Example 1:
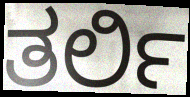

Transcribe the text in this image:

ತರ್ಲಿ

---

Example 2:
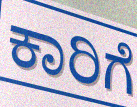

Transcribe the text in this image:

ಕಾರಿಗೆ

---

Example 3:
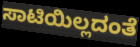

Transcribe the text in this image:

ಸಾಟಿಯಿಲ್ಲದಂತೆ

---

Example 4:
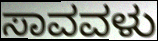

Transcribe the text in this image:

ಸಾವವಳು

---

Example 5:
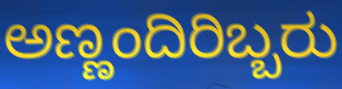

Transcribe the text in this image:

ಅಣ್ಣಂದಿರಿಬ್ಬರು